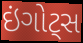
ઇંગોટ્સ